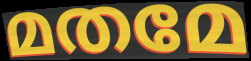
മതമേ